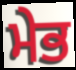
ਮੇਭ